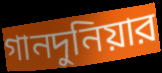
গানদুনিয়ার